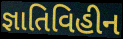
જ્ઞાતિવિહીન